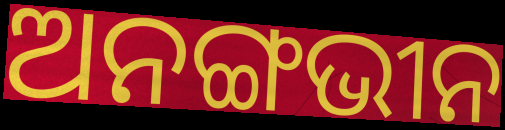
ଅନଙ୍ଗଭୀନ